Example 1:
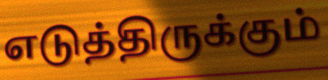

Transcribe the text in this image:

எடுத்திருக்கும்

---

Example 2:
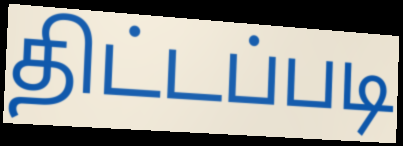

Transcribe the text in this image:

திட்டப்படி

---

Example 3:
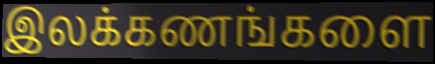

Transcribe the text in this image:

இலக்கணங்களை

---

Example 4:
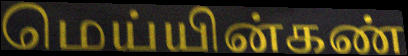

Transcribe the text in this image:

மெய்யின்கண்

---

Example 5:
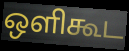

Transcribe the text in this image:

ஒளிகூட